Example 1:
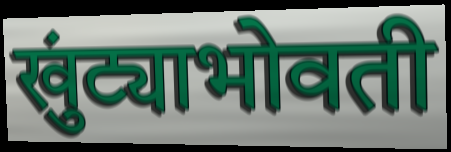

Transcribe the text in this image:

खुंट्याभोवती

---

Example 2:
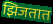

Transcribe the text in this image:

झिजतात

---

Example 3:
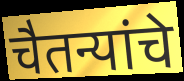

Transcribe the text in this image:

चैतन्यांचे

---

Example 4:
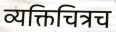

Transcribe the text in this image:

व्यक्तिचित्रच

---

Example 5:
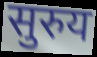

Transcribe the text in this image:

सुरुय